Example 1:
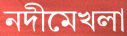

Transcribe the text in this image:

নদীমেখলা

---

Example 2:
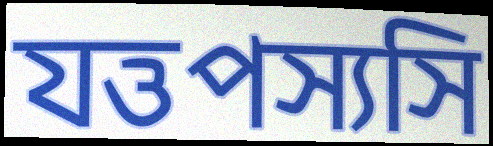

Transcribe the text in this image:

যত্তপস্যসি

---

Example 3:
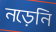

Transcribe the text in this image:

নড়েনি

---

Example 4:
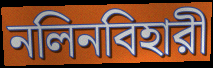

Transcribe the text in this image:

নলিনবিহারী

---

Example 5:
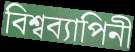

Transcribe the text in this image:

বিশ্বব্যাপিনী